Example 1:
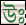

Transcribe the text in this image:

উঃ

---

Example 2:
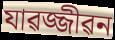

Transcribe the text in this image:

যাৱজ্জীৱন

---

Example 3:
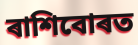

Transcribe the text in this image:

ৰাশিবোৰত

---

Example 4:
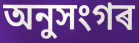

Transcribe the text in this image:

অনুসংগৰ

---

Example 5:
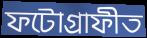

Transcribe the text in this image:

ফটোগ্ৰাফীত